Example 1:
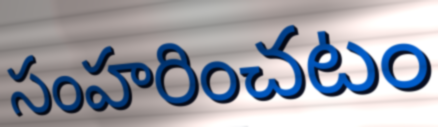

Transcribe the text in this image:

సంహరించటం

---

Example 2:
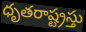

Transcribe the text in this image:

ధృతరాష్ట్రస్తు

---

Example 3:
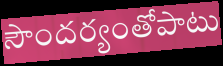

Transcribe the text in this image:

సౌందర్యంతోపాటు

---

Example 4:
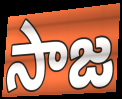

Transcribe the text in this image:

సాజ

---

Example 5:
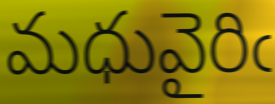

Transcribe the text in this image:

మధువైరిఁ